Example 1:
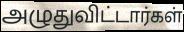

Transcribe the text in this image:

அழுதுவிட்டார்கள்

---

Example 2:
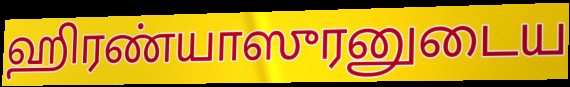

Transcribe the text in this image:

ஹிரண்யாஸுரனுடைய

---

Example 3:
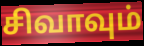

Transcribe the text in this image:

சிவாவும்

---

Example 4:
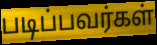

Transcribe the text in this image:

படிப்பவர்கள்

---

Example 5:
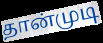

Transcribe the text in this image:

தான்முடி